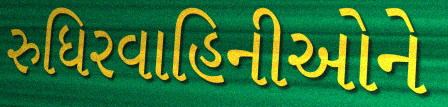
રુધિરવાહિનીઓને